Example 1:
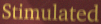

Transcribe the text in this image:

Stimulated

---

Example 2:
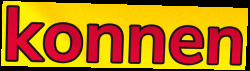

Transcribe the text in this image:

konnen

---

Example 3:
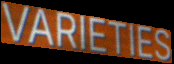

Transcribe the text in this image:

VARIETIES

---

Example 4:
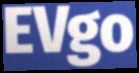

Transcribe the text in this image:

EVgo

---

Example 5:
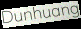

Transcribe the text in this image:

Dunhuang